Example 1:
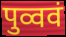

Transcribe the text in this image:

पुव्ववं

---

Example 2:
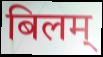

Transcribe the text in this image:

बिलम्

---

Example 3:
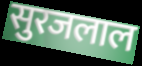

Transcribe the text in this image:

सुरजलाल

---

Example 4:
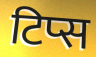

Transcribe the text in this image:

टिप्‍स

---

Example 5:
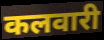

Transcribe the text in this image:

कलवारी